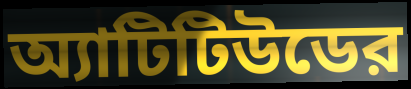
অ্যাটিটিউডের